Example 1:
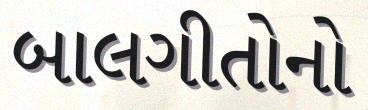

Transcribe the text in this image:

બાલગીતોનો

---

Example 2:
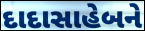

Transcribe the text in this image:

દાદાસાહેબને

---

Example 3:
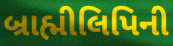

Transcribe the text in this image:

બ્રાહ્મીલિપિની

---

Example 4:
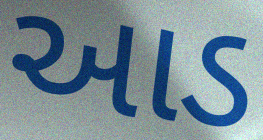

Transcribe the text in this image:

આડ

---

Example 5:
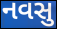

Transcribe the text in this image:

નવસુ